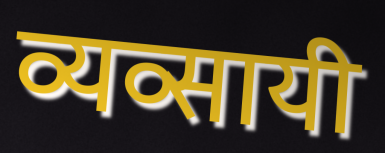
व्यव्सायी